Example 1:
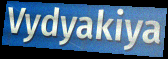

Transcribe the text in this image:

Vydyakiya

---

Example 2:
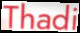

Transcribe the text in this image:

Thadi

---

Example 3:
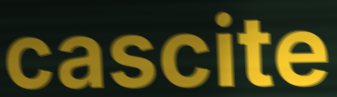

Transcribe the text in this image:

cascite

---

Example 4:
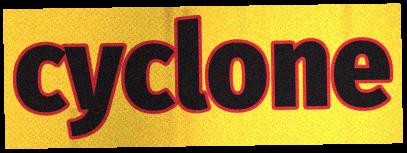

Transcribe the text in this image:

cyclone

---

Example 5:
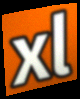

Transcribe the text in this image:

xl